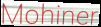
Mohiner